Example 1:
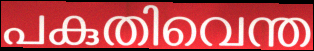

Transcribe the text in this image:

പകുതിവെന്ത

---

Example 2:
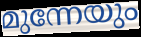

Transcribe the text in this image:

മുന്നേയും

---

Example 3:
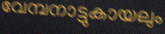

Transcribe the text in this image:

വേമ്പനാട്ടുകായലും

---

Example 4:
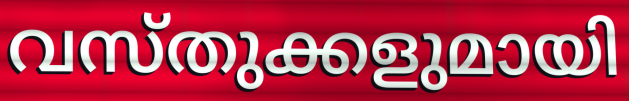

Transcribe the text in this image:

വസ്തുക്കളുമായി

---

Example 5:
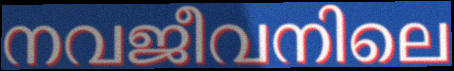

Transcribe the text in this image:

നവജീവനിലെ